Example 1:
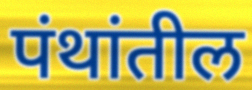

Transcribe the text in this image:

पंथांतील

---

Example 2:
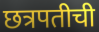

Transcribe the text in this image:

छत्रपतीची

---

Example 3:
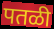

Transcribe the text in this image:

पतळी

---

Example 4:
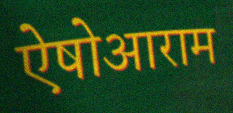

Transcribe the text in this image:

ऐषोआराम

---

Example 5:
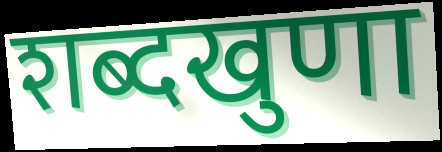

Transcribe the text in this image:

शब्दखुणा